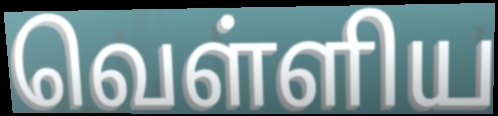
வெள்ளிய